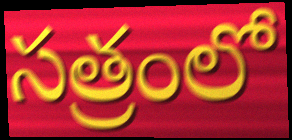
సత్రంలో